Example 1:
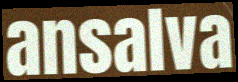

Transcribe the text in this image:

ansalva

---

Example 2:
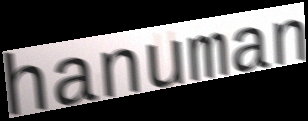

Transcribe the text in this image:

hanuman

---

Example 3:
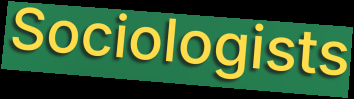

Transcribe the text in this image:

Sociologists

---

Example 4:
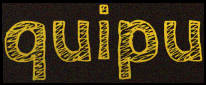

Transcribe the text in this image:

quipu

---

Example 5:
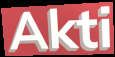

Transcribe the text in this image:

Akti